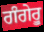
ਗੰਗੇਰੂ